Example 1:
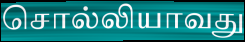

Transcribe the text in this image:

சொல்லியாவது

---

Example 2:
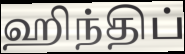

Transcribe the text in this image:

ஹிந்திப்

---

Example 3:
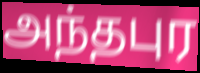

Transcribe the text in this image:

அந்தபுர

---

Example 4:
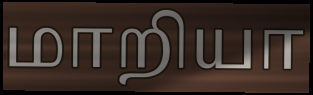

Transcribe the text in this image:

மாறியா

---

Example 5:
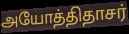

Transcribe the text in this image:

அயோத்திதாசர்